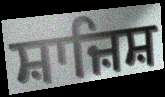
ਸ਼ਾਜ਼ਿਸ਼